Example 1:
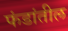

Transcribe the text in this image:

फंडांतील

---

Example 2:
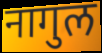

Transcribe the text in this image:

नागुल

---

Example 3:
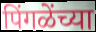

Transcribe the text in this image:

पिंगळेंच्या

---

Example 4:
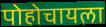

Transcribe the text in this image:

पोहोचायला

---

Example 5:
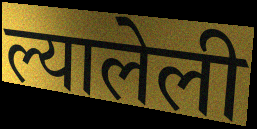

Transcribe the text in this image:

ल्यालेली